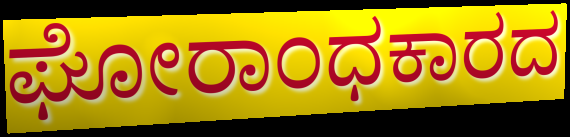
ಘೋರಾಂಧಕಾರದ